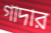
গাদার